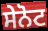
ਸੇਨੋਟ